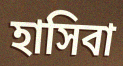
হাসিবা